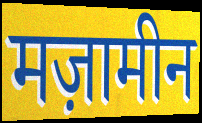
मज़ामीन